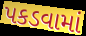
પકડવામાં